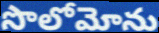
సొలోమోను